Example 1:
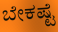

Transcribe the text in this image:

ಬೇಕಷ್ಟೆ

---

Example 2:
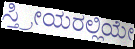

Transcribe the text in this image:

ಸ್ತ್ರೀಯರಲ್ಲಿಯೇ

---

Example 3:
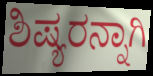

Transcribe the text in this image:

ಶಿಷ್ಯರನ್ನಾಗಿ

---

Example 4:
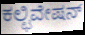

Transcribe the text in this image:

ಕಲ್ಟಿವೇಷನ್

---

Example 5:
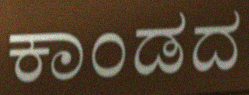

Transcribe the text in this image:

ಕಾಂಡದ